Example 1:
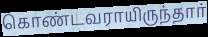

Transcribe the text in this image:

கொண்டவராயிருந்தார்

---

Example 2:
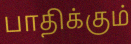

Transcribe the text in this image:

பாதிக்கும்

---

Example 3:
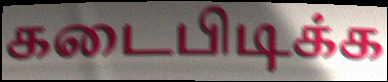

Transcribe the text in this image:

கடைபிடிக்க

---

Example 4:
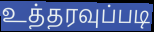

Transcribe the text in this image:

உத்தரவுப்படி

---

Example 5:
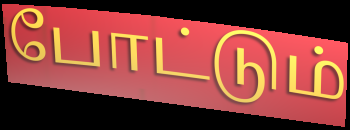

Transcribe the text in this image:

போட்டும்